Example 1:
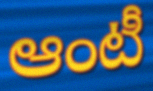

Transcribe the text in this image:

ఆంటీ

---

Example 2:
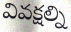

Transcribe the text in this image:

వివక్షల్ని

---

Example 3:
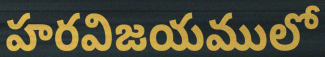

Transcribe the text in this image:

హరవిజయములో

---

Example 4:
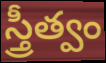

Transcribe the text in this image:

స్త్రీత్వం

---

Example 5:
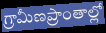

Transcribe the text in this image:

గ్రామీణప్రాంతాల్లో